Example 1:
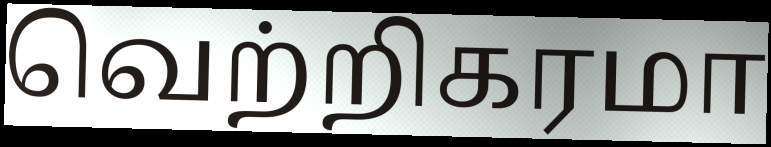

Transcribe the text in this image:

வெற்றிகரமா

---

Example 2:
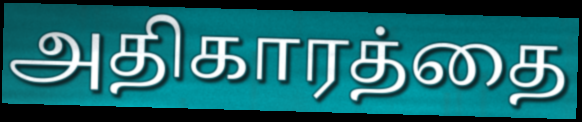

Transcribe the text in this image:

அதிகாரத்தை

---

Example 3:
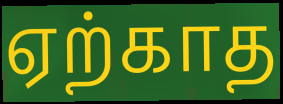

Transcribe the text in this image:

ஏற்காத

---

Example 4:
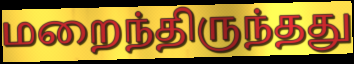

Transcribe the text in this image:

மறைந்திருந்தது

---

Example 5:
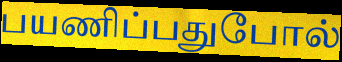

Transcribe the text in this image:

பயணிப்பதுபோல்